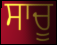
ਸਾਚੂ